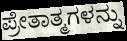
ಪ್ರೇತಾತ್ಮಗಳನ್ನು